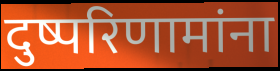
दुष्परिणामांना